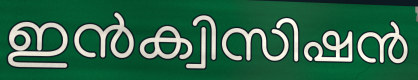
ഇൻക്വിസിഷൻ